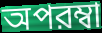
অপরম্বা